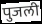
पुजली